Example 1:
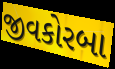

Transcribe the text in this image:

જીવકોરબા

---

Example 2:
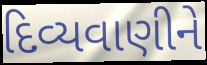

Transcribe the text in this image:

દિવ્યવાણીને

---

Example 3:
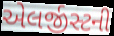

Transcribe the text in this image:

એલર્જીસ્ટની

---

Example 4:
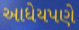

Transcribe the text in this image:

આધેયપણે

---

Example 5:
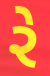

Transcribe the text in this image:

રે